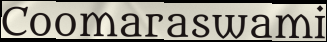
Coomaraswami